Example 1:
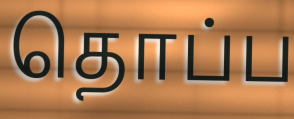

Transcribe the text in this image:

தொப்ப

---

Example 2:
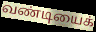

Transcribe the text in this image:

வண்டியைக்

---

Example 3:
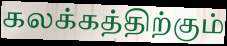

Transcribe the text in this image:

கலக்கத்திற்கும்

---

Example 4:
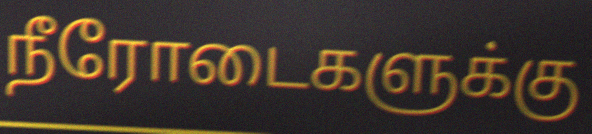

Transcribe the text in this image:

நீரோடைகளுக்கு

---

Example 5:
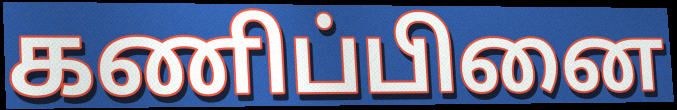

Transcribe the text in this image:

கணிப்பினை